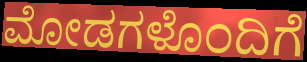
ಮೋಡಗಳೊಂದಿಗೆ